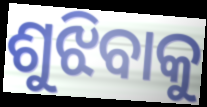
ଶୁଝିବାକୁ